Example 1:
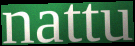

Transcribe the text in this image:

nattu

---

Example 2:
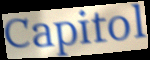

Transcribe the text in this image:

Capitol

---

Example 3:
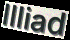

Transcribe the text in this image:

Illiad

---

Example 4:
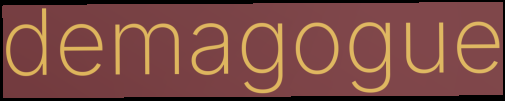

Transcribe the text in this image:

demagogue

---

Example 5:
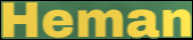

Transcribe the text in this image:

Heman